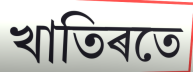
খাতিৰতে